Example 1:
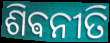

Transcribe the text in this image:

ଶିଵନୀତି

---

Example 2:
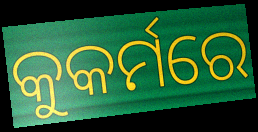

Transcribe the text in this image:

କୁକର୍ମରେ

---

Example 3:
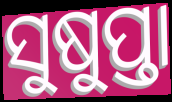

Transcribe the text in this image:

ସୁଷୁପ୍ତା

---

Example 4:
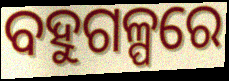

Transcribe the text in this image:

ବହୁଗଳ୍ପରେ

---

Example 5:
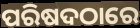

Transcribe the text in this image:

ପରିଷଦଠାରେ